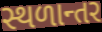
સ્થળાન્તર